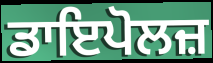
ਡਾਇਪੋਲਜ਼